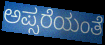
ಅಪ್ಸರೆಯಂತೆ